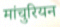
मांचुरियन